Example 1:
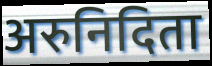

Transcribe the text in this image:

अरुनिदिता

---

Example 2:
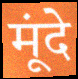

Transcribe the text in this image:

मूंदे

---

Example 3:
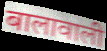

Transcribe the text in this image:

बालावाली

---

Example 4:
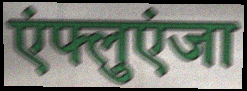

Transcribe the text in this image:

एंफ्लुएंजा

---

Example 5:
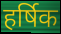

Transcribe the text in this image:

हर्षिक